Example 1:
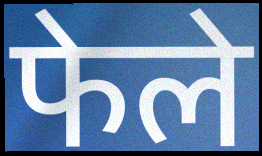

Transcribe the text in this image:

फेले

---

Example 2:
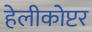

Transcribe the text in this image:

हेलीकोप्टर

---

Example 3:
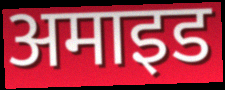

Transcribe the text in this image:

अमाइड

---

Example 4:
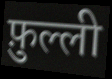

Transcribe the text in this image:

फ़ुल्ली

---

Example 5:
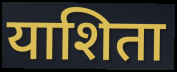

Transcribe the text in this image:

याशिता